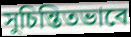
সুচিন্তিতভাবে